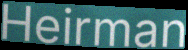
Heirman